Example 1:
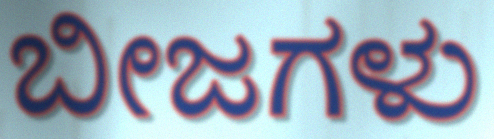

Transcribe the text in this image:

ಬೀಜಗಳು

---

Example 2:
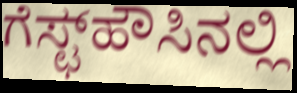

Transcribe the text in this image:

ಗೆಸ್ಟ್‌ಹೌಸಿನಲ್ಲಿ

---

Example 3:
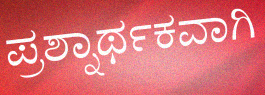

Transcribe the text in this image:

ಪ್ರಶ್ನಾರ್ಥಕವಾಗಿ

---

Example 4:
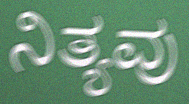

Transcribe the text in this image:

ನಿತ್ಯವು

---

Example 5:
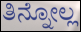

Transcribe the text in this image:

ತಿನ್ನೋಲ್ಲ